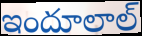
ఇందూలాల్